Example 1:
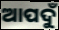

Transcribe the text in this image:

ଆପଦୁଁ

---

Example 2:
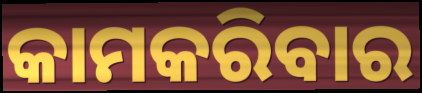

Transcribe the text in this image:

କାମକରିବାର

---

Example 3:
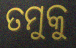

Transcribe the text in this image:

ତମୁକୁ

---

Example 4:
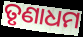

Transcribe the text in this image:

ତୃଣାଧମ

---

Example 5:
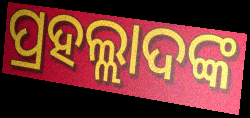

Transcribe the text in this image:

ପ୍ରହଲ୍ଲାଦଙ୍କ